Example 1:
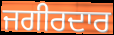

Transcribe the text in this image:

ਜਗੀਰਦਾਰ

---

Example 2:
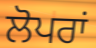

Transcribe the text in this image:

ਲੋਪਰਾਂ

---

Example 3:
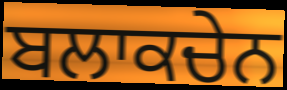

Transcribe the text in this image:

ਬਲਾਕਚੇਨ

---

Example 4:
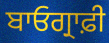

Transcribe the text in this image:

ਬਾਓਗ੍ਰਾਫ਼ੀ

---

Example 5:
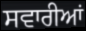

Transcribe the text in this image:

ਸਵਾਰੀਆਂ